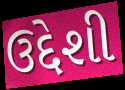
ઉદ્દેશી